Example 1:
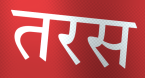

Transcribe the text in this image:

तरस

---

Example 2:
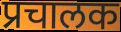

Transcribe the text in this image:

प्रचालक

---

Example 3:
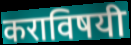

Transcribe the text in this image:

कराविषयी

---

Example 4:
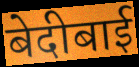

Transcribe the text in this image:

बेदीबाई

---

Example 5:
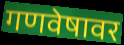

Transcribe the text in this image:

गणवेषावर